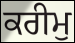
ਕਰੀਮੁ